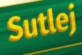
Sutlej